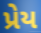
પ્રેય